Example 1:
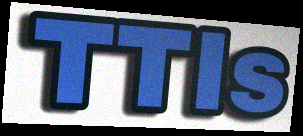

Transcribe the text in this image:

TTIs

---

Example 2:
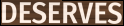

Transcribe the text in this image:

DESERVES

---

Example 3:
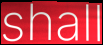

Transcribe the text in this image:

shall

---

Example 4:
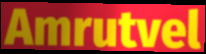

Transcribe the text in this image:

Amrutvel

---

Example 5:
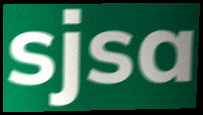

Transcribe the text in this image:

sjsa